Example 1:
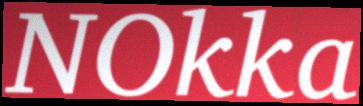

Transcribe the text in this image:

NOkka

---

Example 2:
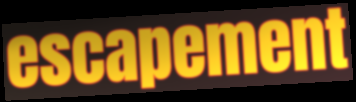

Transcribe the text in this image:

escapement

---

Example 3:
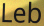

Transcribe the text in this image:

Leb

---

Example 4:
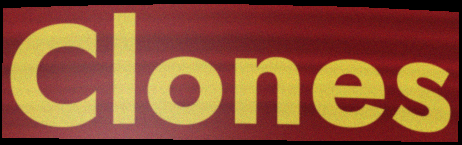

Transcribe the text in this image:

Clones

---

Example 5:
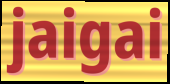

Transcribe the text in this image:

jaigai